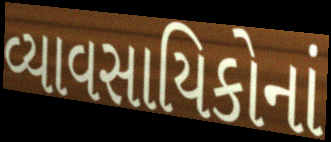
વ્યાવસાયિકોનાં